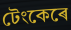
টেংকেৰে